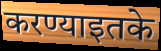
करण्याइतके